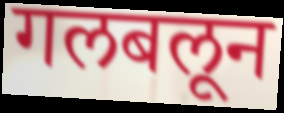
गलबलून